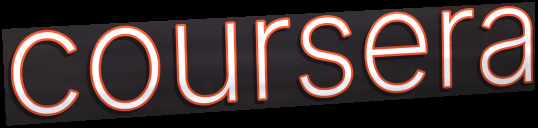
coursera